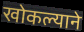
खोकल्याने